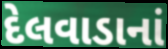
દેલવાડાનાં